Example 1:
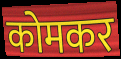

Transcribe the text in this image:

कोमकर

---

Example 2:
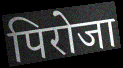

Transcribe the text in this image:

पिरोजा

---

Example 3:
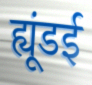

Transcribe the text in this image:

ह्यूंडई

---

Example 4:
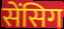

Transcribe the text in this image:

सेंसिग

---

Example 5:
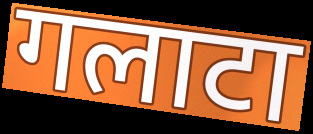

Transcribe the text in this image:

गलाटा